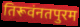
तिरूवंनतपुरम